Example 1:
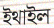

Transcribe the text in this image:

ইথাইল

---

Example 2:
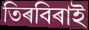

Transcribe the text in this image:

তিৰবিৰাই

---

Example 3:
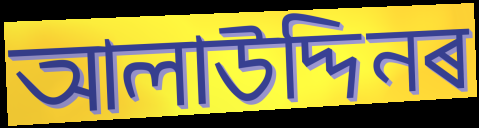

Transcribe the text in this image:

আলাউদ্দিনৰ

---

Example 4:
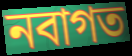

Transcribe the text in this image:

নবাগত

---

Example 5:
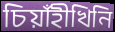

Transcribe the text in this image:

চিয়াঁহীখিনি